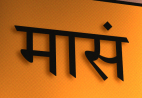
मासं